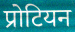
प्रोटियन